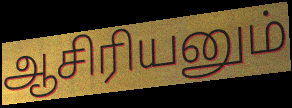
ஆசிரியனும்